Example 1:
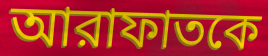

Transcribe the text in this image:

আরাফাতকে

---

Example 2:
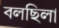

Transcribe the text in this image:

বলছিলা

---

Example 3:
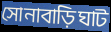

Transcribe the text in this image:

সোনাবাড়িঘাট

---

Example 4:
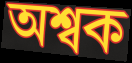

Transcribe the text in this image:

অশ্বক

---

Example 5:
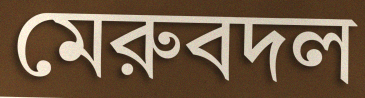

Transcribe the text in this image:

মেরুবদল